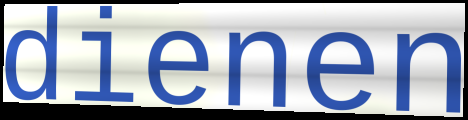
dienen